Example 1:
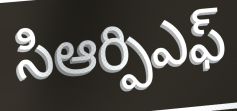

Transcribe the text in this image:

సిఆర్పిఎఫ్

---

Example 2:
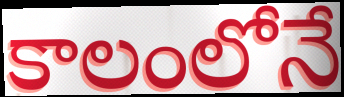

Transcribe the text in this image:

కాలంలోనే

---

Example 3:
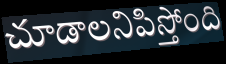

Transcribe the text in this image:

చూడాలనిపిస్తోంది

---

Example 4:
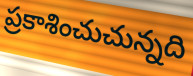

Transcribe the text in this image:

ప్రకాశించుచున్నది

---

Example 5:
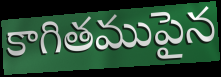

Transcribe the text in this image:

కాగితముపైన